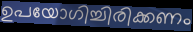
ഉപയോഗിച്ചിരിക്കണം